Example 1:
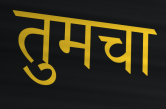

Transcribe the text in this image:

तुमचा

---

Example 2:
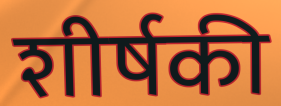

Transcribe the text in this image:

शीर्षकी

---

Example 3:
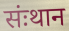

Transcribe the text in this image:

संःथान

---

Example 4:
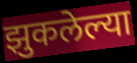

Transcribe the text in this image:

झुकलेल्या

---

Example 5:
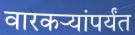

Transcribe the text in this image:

वारकऱ्यांपर्यंत